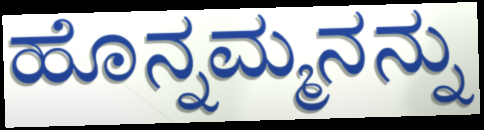
ಹೊನ್ನಮ್ಮನನ್ನು